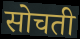
सोचती